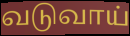
வடுவாய்